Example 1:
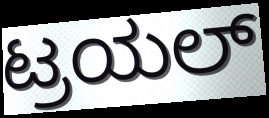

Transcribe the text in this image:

ಟ್ರಯಲ್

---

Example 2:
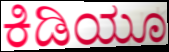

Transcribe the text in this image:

ಕಿಡಿಯೂ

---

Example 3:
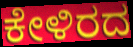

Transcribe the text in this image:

ಕೇಳಿರದ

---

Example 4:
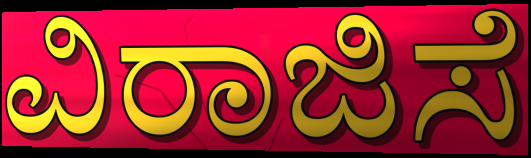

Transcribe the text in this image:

ವಿರಾಜಿಸೆ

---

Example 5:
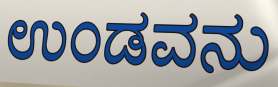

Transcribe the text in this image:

ಉಂಡವನು